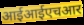
आईआईएचआर